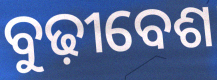
ବୁଢ଼ୀବେଶ